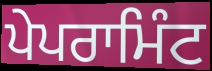
ਪੇਪਰਾਮਿੰਟ